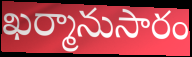
ఖర్మానుసారం